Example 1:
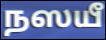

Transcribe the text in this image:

நஸயீ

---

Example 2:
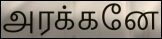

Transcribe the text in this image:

அரக்கனே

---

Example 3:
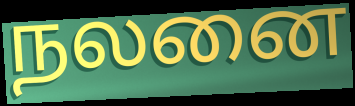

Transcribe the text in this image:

நலனை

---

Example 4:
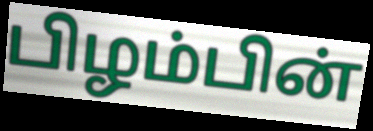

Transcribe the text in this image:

பிழம்பின்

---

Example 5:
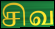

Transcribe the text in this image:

சிவ